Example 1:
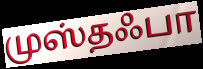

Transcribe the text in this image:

முஸ்தஃபா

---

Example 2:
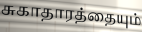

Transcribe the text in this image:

சுகாதாரத்தையும்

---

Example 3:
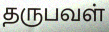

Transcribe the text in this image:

தருபவள்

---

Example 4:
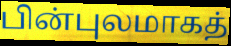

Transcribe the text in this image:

பின்புலமாகத்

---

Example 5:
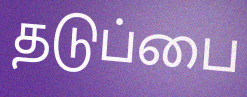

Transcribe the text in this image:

தடுப்பை